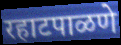
रहाटपाळणे